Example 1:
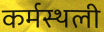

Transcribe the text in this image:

कर्मस्थली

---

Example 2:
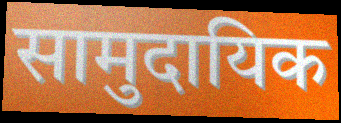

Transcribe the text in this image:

सामुदायिक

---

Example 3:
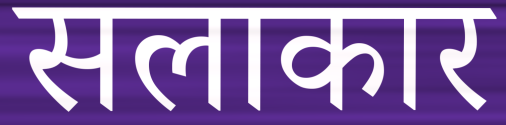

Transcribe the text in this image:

सलाकार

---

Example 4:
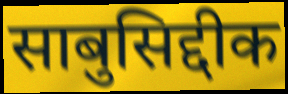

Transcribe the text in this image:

साबुसिद्दीक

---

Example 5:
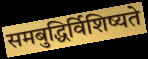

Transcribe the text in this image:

समबुद्धिर्विशिष्यते